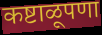
कष्टाळूपणा